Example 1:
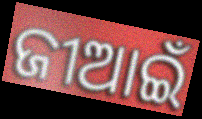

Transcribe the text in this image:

ଜୀଆଇଁ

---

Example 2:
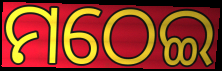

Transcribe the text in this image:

ମଠେଇ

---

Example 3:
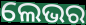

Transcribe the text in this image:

ଲେଭର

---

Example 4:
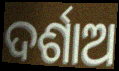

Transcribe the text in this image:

ଦର୍ଶାଅ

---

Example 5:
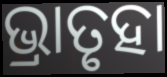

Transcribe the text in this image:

ଭ୍ରାତୃହା